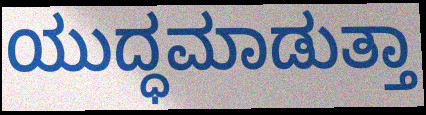
ಯುದ್ಧಮಾಡುತ್ತಾ